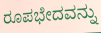
ರೂಪಭೇದವನ್ನು